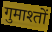
गुमाश्तों